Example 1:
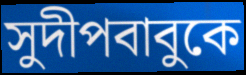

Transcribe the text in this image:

সুদীপবাবুকে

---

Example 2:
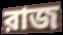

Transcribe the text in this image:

রাজ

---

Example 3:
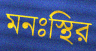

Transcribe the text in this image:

মনঃস্থির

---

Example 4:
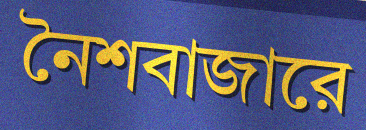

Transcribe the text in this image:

নৈশবাজারে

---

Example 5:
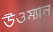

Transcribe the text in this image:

উওম্যান